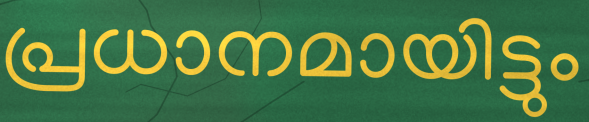
പ്രധാനമായിട്ടും